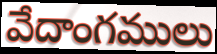
వేదాంగములు